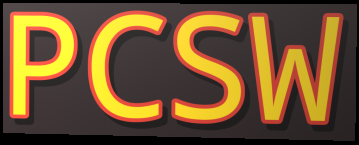
PCSW